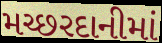
મચ્છરદાનીમાં